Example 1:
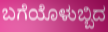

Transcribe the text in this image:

ಬಗೆಯೊಳುಬ್ಬಿದ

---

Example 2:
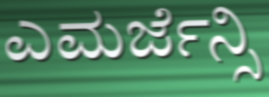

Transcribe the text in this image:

ಎಮರ್ಜೆನ್ಸಿ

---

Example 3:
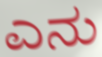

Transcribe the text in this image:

ಎನು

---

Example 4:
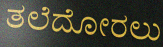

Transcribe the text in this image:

ತಲೆದೋರಲು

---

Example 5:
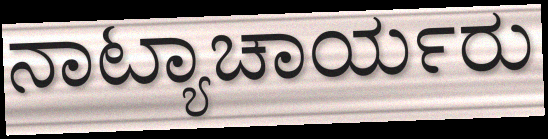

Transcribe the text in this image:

ನಾಟ್ಯಾಚಾರ್ಯರು